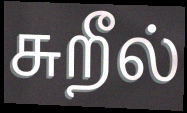
சுறீல்